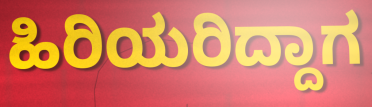
ಹಿರಿಯರಿದ್ದಾಗ